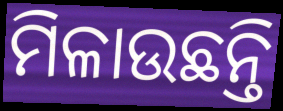
ମିଳାଉଛନ୍ତି